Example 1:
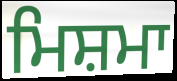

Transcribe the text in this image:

ਮਿਸ਼ਮਾ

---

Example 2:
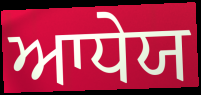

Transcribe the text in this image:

ਆਧੇਯ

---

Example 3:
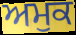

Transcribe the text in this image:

ਅਮੁਕ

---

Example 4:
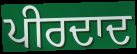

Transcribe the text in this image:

ਪੀਰਦਾਦ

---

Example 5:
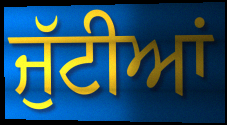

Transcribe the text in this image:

ਜੁੱਟੀਆਂ